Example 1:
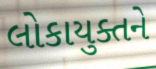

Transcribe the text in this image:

લોકાયુક્તને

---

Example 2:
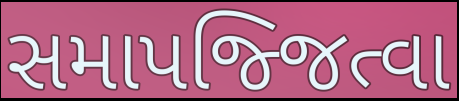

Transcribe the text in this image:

સમાપજ્જિત્વા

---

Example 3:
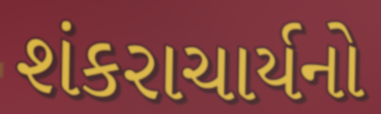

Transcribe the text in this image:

શંકરાચાર્યનો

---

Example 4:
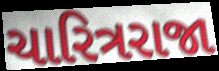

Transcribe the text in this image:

ચારિત્રરાજા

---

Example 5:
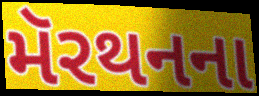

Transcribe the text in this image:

મૅરથનના